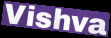
Vishva